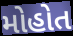
મોહોત